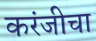
करंजीचा